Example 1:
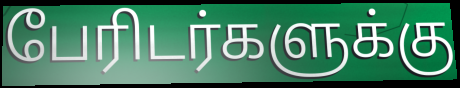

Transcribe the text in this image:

பேரிடர்களுக்கு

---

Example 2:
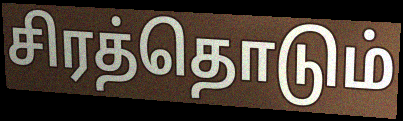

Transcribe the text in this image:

சிரத்தொடும்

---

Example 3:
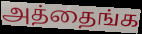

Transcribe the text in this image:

அத்தைங்க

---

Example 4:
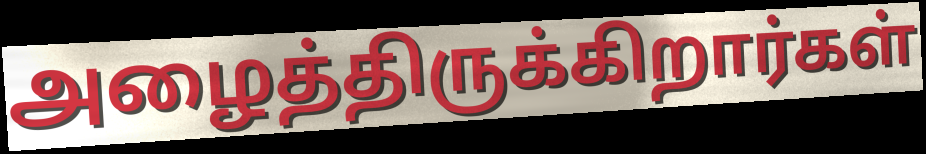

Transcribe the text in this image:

அழைத்திருக்கிறார்கள்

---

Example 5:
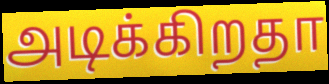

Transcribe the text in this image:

அடிக்கிறதா